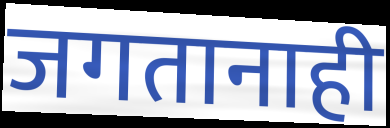
जगतानाही